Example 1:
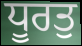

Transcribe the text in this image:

ਧੂਰਤੁ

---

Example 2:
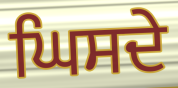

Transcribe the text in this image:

ਘਿਸਦੇ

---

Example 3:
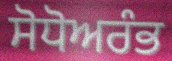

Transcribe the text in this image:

ਸੋਧੋਅਰੰਭ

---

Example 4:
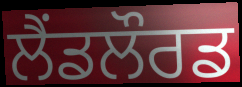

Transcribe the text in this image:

ਲੈਂਡਲੌਰਡ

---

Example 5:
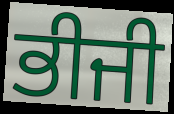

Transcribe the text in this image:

ਭੀਜੀ